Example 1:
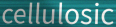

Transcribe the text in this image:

cellulosic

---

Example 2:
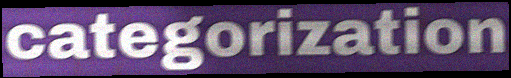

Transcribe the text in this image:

categorization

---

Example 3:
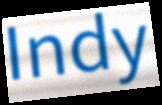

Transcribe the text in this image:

Indy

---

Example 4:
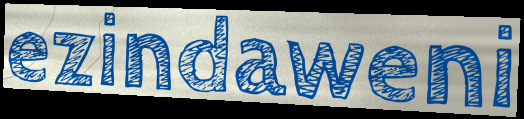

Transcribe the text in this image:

ezindaweni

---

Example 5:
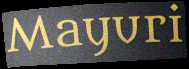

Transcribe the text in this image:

Mayuri